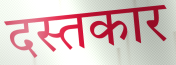
दस्‍तकार